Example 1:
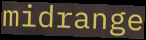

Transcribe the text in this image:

midrange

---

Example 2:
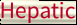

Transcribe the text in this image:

Hepatic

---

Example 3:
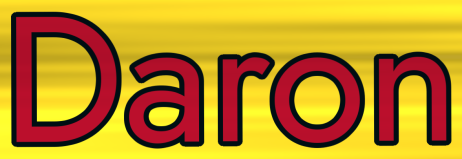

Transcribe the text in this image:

Daron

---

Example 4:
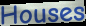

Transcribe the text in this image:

Houses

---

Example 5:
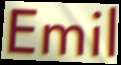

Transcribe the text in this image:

Emil